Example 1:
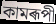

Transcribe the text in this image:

কামৰূপী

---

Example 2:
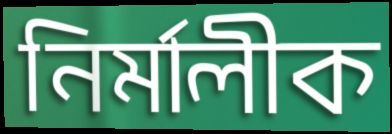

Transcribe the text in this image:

নিৰ্মালীক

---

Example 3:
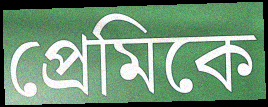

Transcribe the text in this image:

প্ৰেমিকে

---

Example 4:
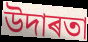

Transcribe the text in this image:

উদাৰতা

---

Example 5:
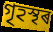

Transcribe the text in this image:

গৃহস্থৰ